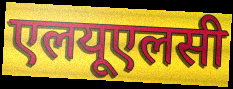
एलयूएलसी